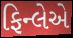
ફિન્લેએ